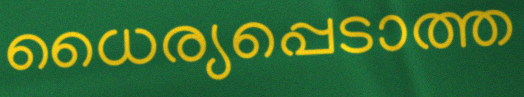
ധൈര്യപ്പെടാത്ത